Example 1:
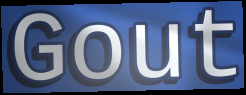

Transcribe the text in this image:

Gout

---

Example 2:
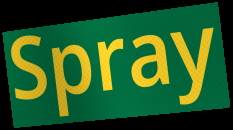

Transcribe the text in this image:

Spray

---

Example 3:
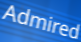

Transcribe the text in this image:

Admired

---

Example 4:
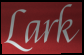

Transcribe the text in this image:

Lark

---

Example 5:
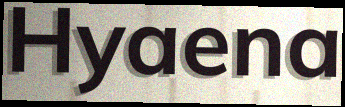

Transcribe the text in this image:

Hyaena